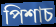
পিশাচ